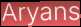
Aryans